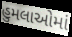
હુમલાઓમાં